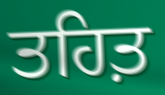
ਤਹਿਤ਼